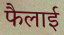
फैलाई